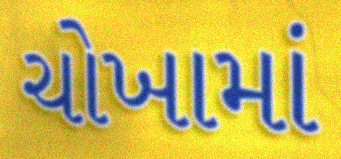
ચોખામાં